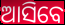
ଆସିବେ